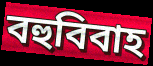
বহুবিবাহ